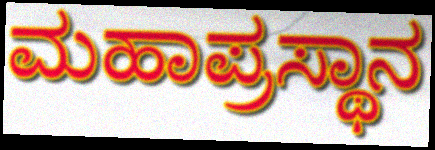
ಮಹಾಪ್ರಸ್ಥಾನ